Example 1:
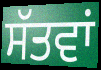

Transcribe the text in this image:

ਸੱਤਵਾਂ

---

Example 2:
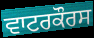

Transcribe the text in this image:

ਵਾਟਰਕੌਰਸ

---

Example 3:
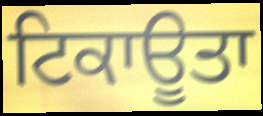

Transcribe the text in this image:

ਟਿਕਾਊਤਾ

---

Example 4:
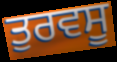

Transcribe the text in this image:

ਤੁਰਵਸੂ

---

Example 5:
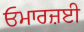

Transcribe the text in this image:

ਓਮਾਰਜ਼ਈ